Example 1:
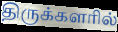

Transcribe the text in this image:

திருக்களரில்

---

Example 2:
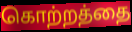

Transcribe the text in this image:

கொற்றத்தை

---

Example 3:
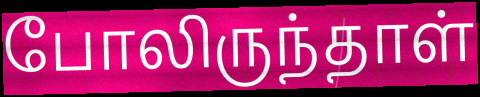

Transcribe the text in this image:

போலிருந்தாள்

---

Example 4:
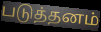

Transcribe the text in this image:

படுத்தனம்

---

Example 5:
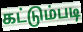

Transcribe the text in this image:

கட்டும்படி